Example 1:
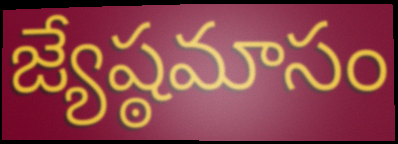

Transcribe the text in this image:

జ్యేష్ఠమాసం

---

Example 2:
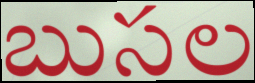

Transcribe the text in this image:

బుసల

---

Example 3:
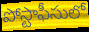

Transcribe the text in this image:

పోస్టాఫీసులో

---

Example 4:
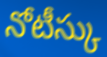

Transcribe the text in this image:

నోటీస్కు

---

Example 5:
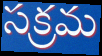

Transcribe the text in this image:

సక్రమ